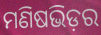
ମଣିଷଭିଡ଼ର